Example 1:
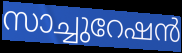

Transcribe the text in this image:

സാച്ചുറേഷൻ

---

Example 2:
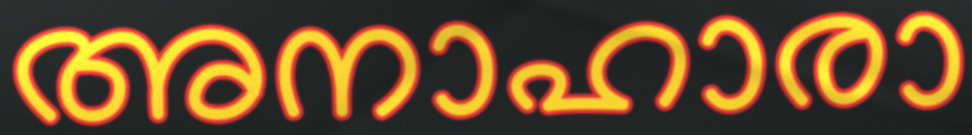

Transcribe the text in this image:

അനാഹാരാ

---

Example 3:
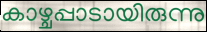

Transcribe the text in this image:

കാഴ്ചപ്പാടായിരുന്നു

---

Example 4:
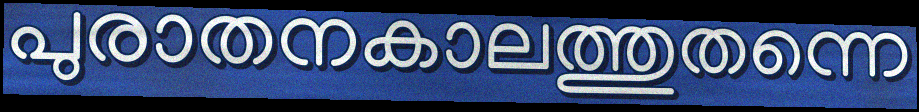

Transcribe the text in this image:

പുരാതനകാലത്തുതന്നെ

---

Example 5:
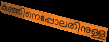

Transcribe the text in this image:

കുഞ്ഞിനെപ്പോലതിനുള്ള